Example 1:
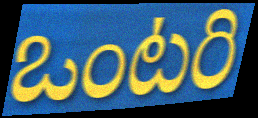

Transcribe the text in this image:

ఒంటరి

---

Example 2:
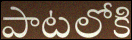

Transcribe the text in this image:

పాటలోకి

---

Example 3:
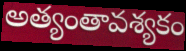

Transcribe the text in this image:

అత్యంతావశ్యకం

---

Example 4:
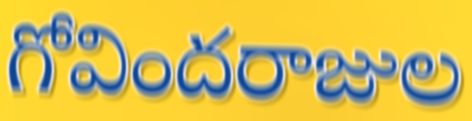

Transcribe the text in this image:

గోవిందరాజుల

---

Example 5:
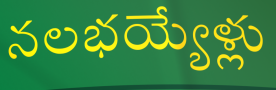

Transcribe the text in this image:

నలభయ్యేళ్లు